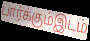
பார்க்கும்இடம்